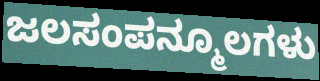
ಜಲಸಂಪನ್ಮೂಲಗಳು